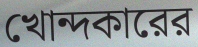
খোন্দকারের